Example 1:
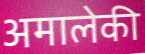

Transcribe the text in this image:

अमालेकी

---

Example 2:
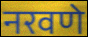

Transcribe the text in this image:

नरवणे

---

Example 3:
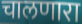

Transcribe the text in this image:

चालणारा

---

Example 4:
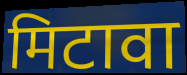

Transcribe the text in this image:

मिटावा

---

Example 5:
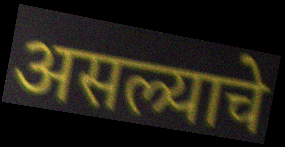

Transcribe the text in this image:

असल्याचे